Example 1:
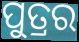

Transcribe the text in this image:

ପୁତ୍ରର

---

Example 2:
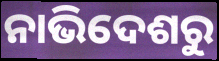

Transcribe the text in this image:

ନାଭିଦେଶରୁ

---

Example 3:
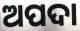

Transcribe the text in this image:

ଅପଦା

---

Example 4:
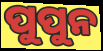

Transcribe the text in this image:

ପୁପୁନ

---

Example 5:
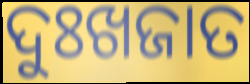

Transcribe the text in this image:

ଦୁଃଖଜାତ